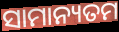
ସାମାନ୍ୟତମ